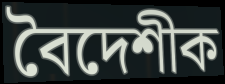
বৈদেশীক